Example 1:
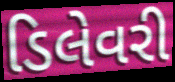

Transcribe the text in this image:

ડિલેવરી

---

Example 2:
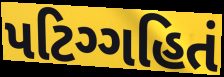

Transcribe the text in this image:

પટિગ્ગહિતં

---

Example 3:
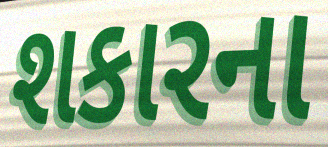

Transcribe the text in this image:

શકારના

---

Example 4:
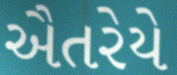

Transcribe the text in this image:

ઐતરેયે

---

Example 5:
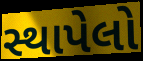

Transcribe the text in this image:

સ્થાપેલો